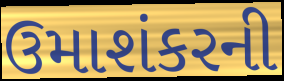
ઉમાશંકરની